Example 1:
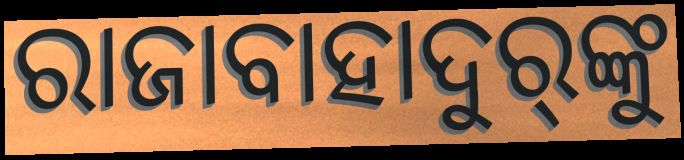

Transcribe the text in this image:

ରାଜାବାହାଦୁର୍‍ଙ୍କୁ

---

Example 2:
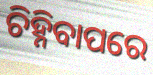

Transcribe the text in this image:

ଚିହ୍ନିବାପରେ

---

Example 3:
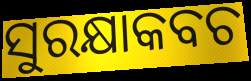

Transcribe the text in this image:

ସୁରକ୍ଷାକବଚ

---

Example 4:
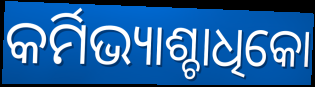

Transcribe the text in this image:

କର୍ମିଭ୍ୟାଶ୍ଚାଧିକୋ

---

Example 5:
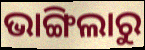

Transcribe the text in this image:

ଭାଙ୍ଗିଲାରୁ